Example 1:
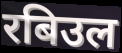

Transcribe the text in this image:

रबिउल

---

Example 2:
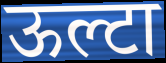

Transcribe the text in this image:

ऊल्टा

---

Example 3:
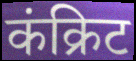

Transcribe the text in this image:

कंक्रिट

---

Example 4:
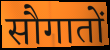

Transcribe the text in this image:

सौगातों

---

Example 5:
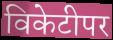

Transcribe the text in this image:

विकेटीपर